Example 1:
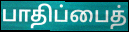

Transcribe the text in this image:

பாதிப்பைத்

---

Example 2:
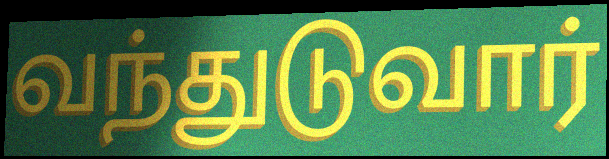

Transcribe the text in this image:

வந்துடுவார்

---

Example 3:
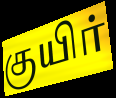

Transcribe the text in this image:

குயிர்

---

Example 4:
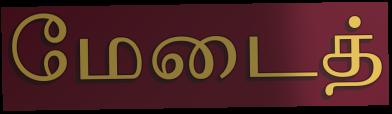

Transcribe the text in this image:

மேடைத்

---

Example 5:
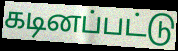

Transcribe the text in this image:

கடினப்பட்டு